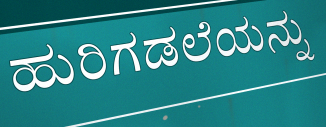
ಹುರಿಗಡಲೆಯನ್ನು